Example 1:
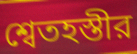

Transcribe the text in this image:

শ্বেতহস্তীর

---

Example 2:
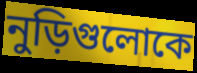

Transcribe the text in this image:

নুড়িগুলোকে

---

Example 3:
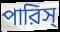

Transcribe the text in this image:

পারিস্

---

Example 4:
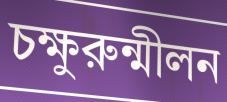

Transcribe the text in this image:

চক্ষুরুন্মীলন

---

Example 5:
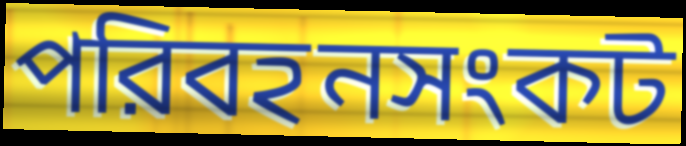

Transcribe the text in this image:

পরিবহনসংকট